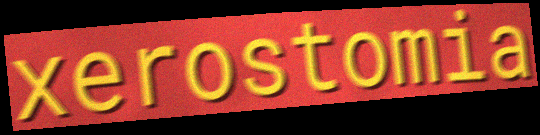
xerostomia